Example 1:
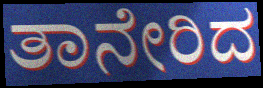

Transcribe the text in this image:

ತಾನೇರಿದ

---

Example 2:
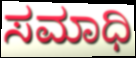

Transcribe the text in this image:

ಸಮಾಧಿ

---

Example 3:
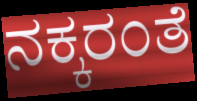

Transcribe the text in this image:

ನಕ್ಕರಂತೆ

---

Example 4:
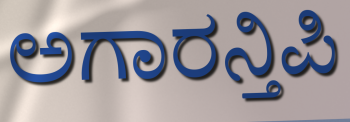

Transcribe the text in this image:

ಅಗಾರನ್ತಿಪಿ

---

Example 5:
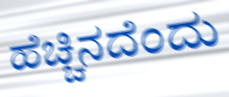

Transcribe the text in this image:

ಹೆಚ್ಚಿನದೆಂದು